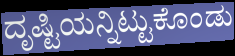
ದೃಷ್ಟಿಯನ್ನಿಟ್ಟುಕೊಂಡು